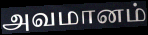
அவமானம்